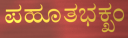
ಪಹೂತಭಕ್ಖಂ